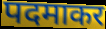
पदमाकर